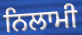
ਨਿਲਾਮੀ